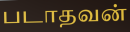
படாதவன்